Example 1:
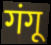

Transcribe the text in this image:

गंगू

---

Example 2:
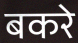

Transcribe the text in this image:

बकरे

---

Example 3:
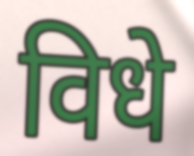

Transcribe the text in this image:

विधे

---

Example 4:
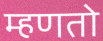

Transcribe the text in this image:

म्हणतो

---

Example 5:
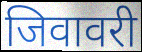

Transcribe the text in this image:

जिवावरी